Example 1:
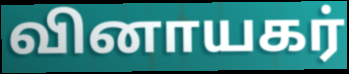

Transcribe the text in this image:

வினாயகர்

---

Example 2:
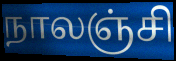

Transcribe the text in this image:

நாலஞ்சி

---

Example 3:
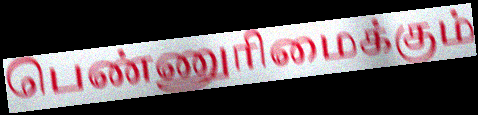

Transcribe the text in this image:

பெண்ணுரிமைக்கும்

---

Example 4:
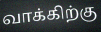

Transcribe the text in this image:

வாக்கிற்கு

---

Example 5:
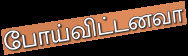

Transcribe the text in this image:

போய்விட்டனவா